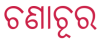
ଚଣାଚୂର